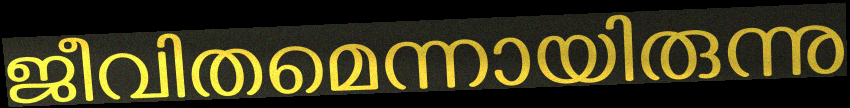
ജീവിതമെന്നായിരുന്നു